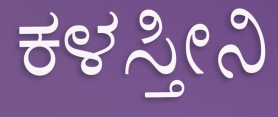
ಕಳಸ್ತೀನಿ